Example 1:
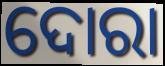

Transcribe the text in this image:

ଦୋରା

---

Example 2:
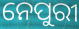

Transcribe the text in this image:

ନେପୁରୀ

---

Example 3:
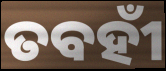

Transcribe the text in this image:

ତବହୀଁ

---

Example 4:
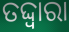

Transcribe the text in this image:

ତଦ୍ଦ୍ଵାରା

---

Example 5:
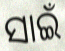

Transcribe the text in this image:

ସାଇଁ